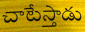
చాటేస్తాడు